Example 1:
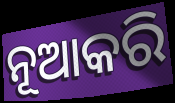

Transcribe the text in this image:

ନୂଆକରି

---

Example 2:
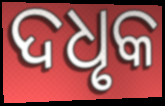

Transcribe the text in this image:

ଦଧୃକ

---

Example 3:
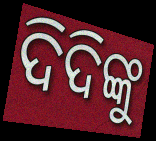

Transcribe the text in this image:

ଦିଦିଙ୍କୁ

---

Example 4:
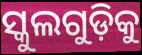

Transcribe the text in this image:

ସ୍କୁଲଗୁଡ଼ିକୁ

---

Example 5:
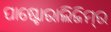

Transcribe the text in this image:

ପାଷ୍ଟୋରାଲିଜିମ୍‌ର